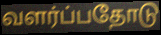
வளர்ப்பதோடு